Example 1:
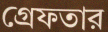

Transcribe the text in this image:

গ্রেফতার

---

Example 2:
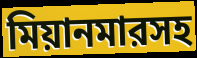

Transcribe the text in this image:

মিয়ানমারসহ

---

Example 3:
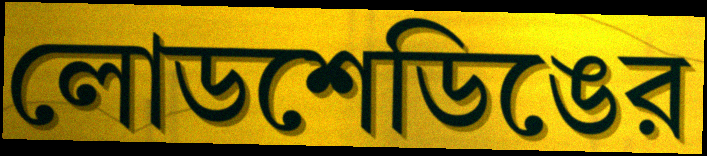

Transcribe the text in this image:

লোডশেডিঙের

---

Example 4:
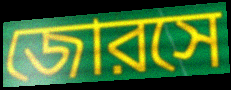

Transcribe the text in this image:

জোরসে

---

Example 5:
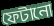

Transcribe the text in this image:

ফেটানো